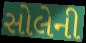
સોલેની